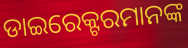
ଡାଇରେକ୍ଟରମାନଙ୍କ